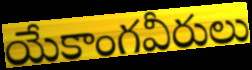
యేకాంగవీరులు